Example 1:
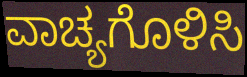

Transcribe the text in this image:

ವಾಚ್ಯಗೊಳಿಸಿ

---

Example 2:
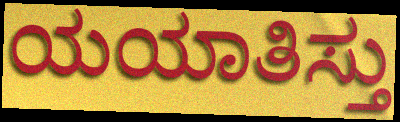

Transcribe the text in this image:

ಯಯಾತಿಸ್ತು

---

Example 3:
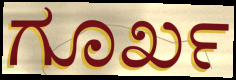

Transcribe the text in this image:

ಗೂರ್ಖ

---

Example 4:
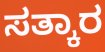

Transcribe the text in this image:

ಸತ್ಕಾರ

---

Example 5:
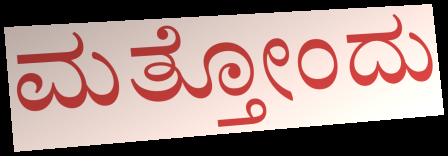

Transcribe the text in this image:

ಮತ್ತೋಂದು